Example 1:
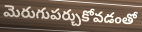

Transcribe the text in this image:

మెరుగుపర్చుకోవడంతో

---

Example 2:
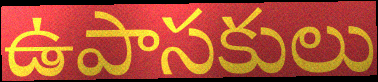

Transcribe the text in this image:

ఉపాసకులు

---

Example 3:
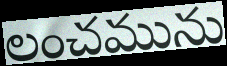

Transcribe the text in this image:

లంచమును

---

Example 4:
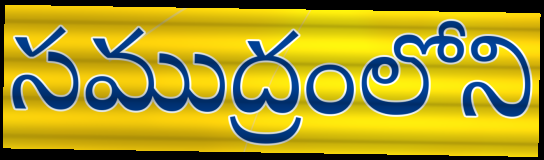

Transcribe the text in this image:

సముద్రంలోని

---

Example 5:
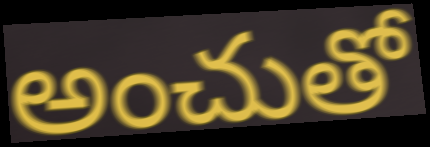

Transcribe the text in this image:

అంచుతో